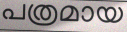
പത്രമായ